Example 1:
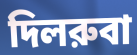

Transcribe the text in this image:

দিলরুবা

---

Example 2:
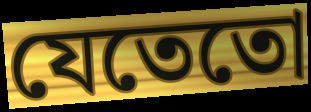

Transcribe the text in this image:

যেতেতো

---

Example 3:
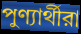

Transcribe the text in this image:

পুণ্যার্থীরা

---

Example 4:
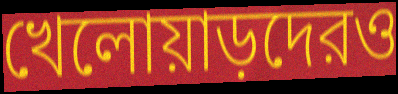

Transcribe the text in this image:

খেলোয়াড়দেরও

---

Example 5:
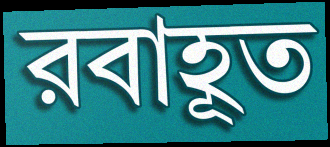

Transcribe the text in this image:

রবাহূত